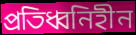
প্রতিধ্বনিহীন